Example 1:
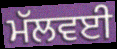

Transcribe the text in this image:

ਮੱਲਵਈ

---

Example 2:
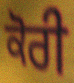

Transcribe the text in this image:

ਕੋਰੀ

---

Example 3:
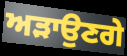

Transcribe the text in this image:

ਅੜਾਉਣਗੇ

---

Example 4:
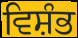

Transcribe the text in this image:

ਵਿਸ਼ੰਭ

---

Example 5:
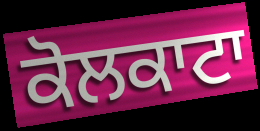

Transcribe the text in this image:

ਕੋਲਕਾਟਾ